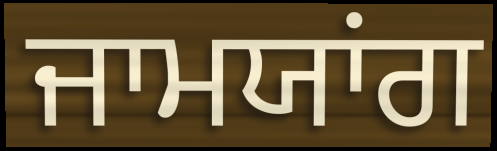
ਜਾਮਯਾਂਗ